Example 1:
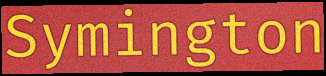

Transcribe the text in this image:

Symington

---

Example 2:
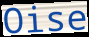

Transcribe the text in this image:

Oise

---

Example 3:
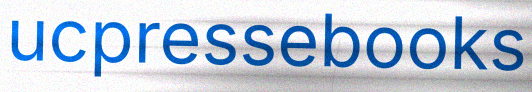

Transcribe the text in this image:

ucpressebooks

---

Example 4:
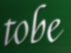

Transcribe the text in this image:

tobe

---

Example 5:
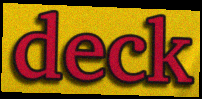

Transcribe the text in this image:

deck